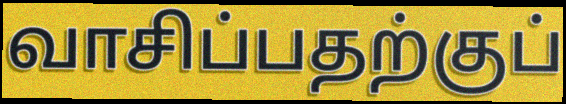
வாசிப்பதற்குப்